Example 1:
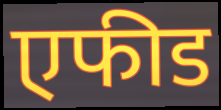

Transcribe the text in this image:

एफीड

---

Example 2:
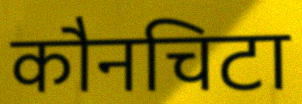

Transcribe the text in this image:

कौनचिटा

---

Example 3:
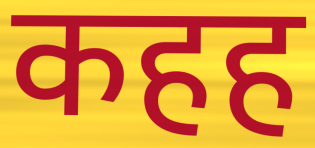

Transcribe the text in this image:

कहह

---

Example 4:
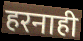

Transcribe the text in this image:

हरनाही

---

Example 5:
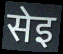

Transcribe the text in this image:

सेइ